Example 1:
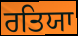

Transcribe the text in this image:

ਰਤਿਯਾ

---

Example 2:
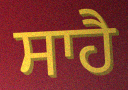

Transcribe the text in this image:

ਸਾਹੈ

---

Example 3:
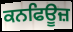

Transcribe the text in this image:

ਕਨਫਿਊਜ਼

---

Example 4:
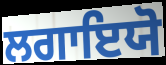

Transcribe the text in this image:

ਲਗਾਇਯੋ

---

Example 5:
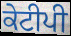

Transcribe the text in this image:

ਕੇਟੀਪੀ